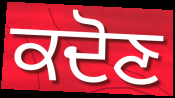
ਕਦੋਣ